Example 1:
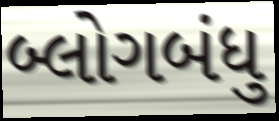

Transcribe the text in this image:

બ્લોગબંધુ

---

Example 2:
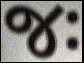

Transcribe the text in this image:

જઃ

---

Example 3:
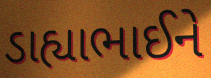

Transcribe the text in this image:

ડાહ્યાભાઈને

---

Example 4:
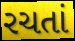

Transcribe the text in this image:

રચતાં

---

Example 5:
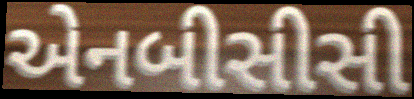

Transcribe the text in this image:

એનબીસીસી